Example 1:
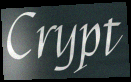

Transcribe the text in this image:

Crypt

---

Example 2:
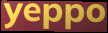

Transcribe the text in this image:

yeppo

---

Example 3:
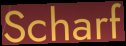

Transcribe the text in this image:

Scharf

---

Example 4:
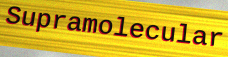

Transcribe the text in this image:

Supramolecular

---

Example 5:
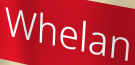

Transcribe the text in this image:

Whelan